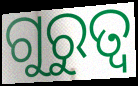
ଗୁରୁତ୍ବ